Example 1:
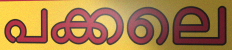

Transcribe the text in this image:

പക്കലെ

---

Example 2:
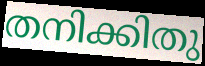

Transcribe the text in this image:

തനിക്കിതു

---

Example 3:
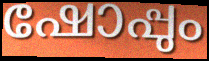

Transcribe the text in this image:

ഷോപ്പും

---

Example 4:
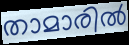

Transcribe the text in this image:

താമാരിൽ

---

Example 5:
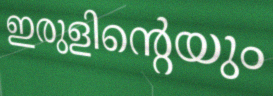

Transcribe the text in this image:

ഇരുളിന്റെയും